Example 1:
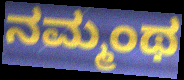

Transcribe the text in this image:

ನಮ್ಮಂಥ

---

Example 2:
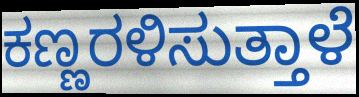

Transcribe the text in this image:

ಕಣ್ಣರಳಿಸುತ್ತಾಳೆ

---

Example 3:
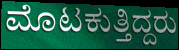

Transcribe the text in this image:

ಮೊಟಕುತ್ತಿದ್ದರು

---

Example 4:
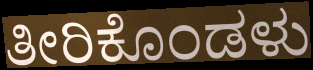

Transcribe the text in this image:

ತೀರಿಕೊಂಡಳು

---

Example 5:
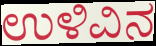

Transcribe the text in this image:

ಉಳಿವಿನ